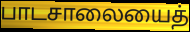
பாடசாலையைத்